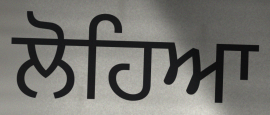
ਲੋਹਿਆ